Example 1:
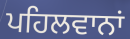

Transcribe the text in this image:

ਪਹਿਲਵਾਨਾਂ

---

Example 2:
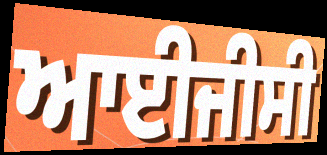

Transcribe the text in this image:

ਆਈਜੀਸੀ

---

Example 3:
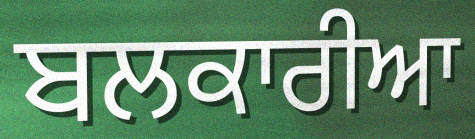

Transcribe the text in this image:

ਬਲਕਾਰੀਆ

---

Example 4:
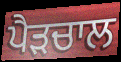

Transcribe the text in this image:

ਪੈੜਚਾਲ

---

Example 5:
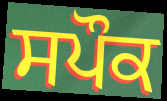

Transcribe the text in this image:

ਸਪੌਕ